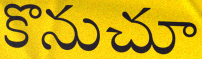
కొనుచూ